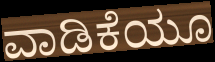
ವಾಡಿಕೆಯೂ